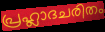
പ്രഹ്ലാദചരിതം